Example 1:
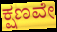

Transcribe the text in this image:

ಕ್ಷಣವೇ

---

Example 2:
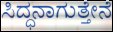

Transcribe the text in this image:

ಸಿದ್ಧನಾಗುತ್ತೇನೆ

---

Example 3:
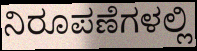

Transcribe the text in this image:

ನಿರೂಪಣೆಗಳಲ್ಲಿ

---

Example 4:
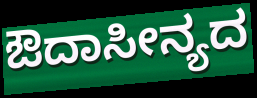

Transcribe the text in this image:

ಔದಾಸೀನ್ಯದ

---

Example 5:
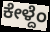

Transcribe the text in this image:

ಕೇಳ್ದೆಂ